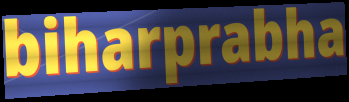
biharprabha